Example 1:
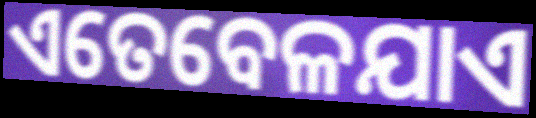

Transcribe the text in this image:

ଏତେବେଳଯାଏ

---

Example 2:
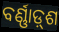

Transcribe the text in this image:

ବର୍ଣ୍ଣାଡ଼୍‌ଶ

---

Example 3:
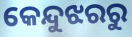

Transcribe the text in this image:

କେନ୍ଦୁଝରରୁ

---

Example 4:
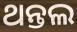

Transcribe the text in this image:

ଥନ୍ତଲ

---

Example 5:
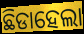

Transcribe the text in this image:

ଛିଡାହେଲା